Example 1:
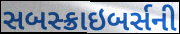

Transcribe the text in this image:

સબસ્ક્રાઇબર્સની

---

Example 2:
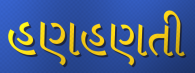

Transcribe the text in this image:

હણહણતી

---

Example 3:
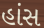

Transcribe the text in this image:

હાંસ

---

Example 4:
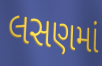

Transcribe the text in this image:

લસણમાં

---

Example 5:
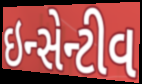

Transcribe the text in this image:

ઇન્સેન્ટીવ